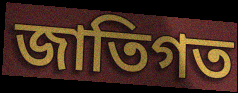
জাতিগত